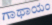
ಗಾಥಾಯಂ